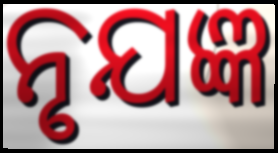
ନୃଯଜ୍ଞ